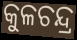
କୁଳଚନ୍ଦ୍ର